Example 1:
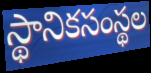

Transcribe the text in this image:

స్థానికసంస్థల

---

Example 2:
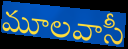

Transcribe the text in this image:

మూలవాసీ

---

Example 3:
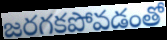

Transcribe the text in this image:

జరగకపోవడంతో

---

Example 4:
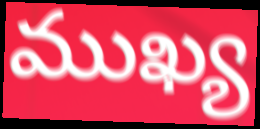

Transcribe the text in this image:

ముఖ్య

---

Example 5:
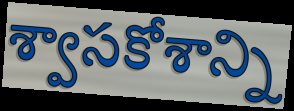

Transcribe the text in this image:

శ్వాసకోశాన్ని